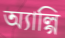
অ্যাল্গি